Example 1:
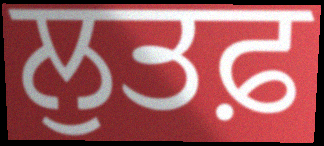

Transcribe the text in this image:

ਲੁਤਫ਼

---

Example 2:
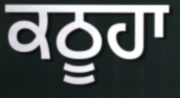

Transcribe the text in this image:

ਕਠੂਹਾ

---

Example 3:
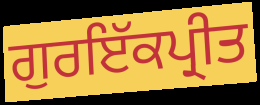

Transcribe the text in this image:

ਗੁਰਇੱਕਪ੍ਰੀਤ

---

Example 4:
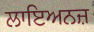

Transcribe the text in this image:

ਲਾਇਅਨਜ਼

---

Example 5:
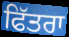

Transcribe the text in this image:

ਫਿੱਤਰਾ